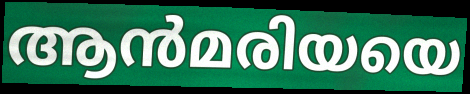
ആൻമരിയയെ